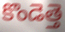
కొండెత్తె